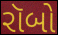
રૉબો